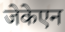
जेकेएन